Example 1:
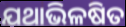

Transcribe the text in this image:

ଯଥାଭିଳଷିତ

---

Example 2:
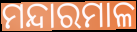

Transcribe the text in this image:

ମନ୍ଦାରମାଳ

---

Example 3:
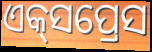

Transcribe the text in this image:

ଏକ୍‍ସପ୍ରେସ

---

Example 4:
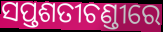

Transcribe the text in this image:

ସପ୍ତଶତୀଚଣ୍ଡୀରେ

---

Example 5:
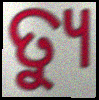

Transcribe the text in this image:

ତ୍ୟୁ